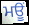
ਮਊਂ